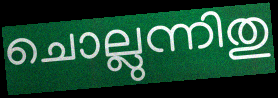
ചൊല്ലുന്നിതു